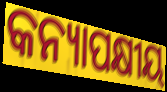
କନ୍ୟାପକ୍ଷୀୟ